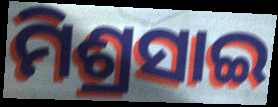
ମିଶ୍ରସାଇ